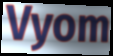
Vyom